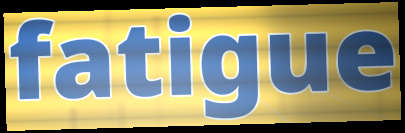
fatigue